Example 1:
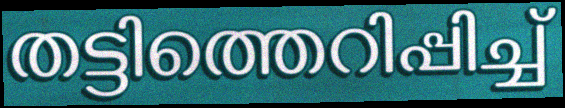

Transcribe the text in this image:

തട്ടിത്തെറിപ്പിച്ച്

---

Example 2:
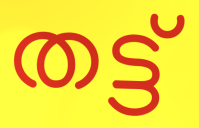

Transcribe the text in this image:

തട്ട്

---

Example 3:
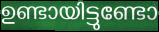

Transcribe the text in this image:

ഉണ്ടായിട്ടുണ്ടോ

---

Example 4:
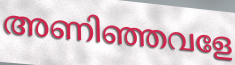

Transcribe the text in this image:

അണിഞ്ഞവളേ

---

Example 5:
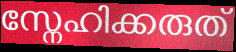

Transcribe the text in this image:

സ്നേഹിക്കരുത്